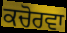
ਕਚੋਰਵਾ